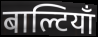
बाल्टियाँ